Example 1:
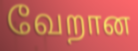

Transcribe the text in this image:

வேறான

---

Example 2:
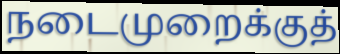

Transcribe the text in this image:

நடைமுறைக்குத்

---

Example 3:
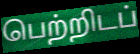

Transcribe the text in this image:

பெற்றிடப்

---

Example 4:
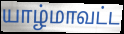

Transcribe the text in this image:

யாழ்மாவட்ட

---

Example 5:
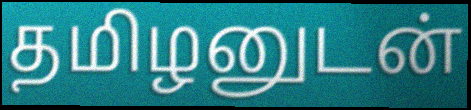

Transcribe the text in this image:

தமிழனுடன்